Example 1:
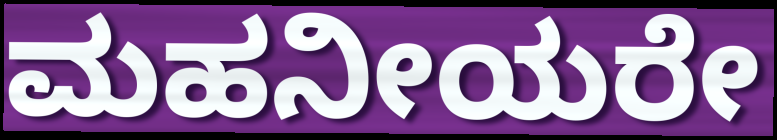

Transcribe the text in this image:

ಮಹನೀಯರೇ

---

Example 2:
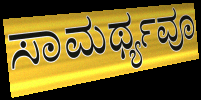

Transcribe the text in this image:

ಸಾಮರ್ಥ್ಯವೂ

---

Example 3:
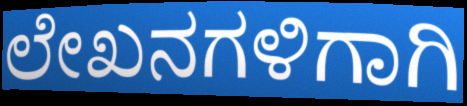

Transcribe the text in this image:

ಲೇಖನಗಳಿಗಾಗಿ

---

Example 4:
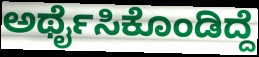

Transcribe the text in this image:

ಅರ್ಥೈಸಿಕೊಂಡಿದ್ದೆ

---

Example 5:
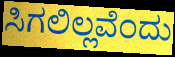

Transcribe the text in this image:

ಸಿಗಲಿಲ್ಲವೆಂದು